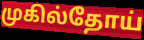
முகில்தோய்